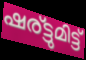
ഷര്ട്ടുമിട്ട്